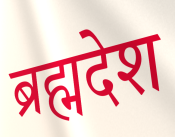
ब्रह्मदेश